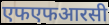
एफएफआरसी